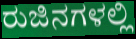
ರುಜಿನಗಳಲ್ಲಿ